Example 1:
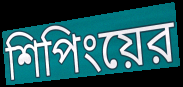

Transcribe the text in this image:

শিপিংয়ের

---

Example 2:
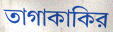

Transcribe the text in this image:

তাগাকাকির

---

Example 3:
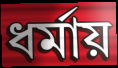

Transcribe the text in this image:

ধর্মায়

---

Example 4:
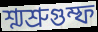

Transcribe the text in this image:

শ্মশ্রুগুম্ফ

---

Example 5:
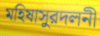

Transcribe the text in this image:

মহিষাসুরদলনী